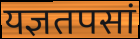
यज्ञतपसां